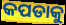
କପଡାକୁ